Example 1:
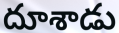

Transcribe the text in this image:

దూశాడు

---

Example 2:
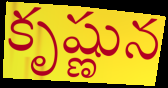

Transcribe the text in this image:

కృష్ణున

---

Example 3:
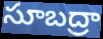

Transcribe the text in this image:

సూబద్రా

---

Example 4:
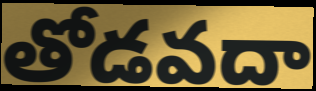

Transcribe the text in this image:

తోడవదా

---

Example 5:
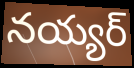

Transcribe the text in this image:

నయ్యర్